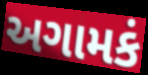
અગામકં